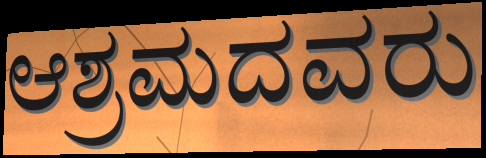
ಆಶ್ರಮದವರು